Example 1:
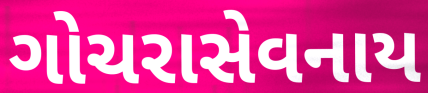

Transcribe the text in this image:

ગોચરાસેવનાય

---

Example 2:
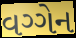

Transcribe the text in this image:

વગ્ગેન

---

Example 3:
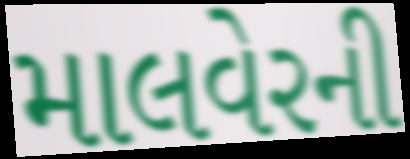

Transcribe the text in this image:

માલવેરની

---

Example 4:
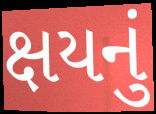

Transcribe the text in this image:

ક્ષયનું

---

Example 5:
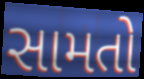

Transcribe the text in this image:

સામતો